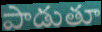
పాడుతూ